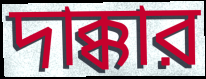
দাক্কার